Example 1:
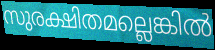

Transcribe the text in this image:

സുരക്ഷിതമല്ലെങ്കിൽ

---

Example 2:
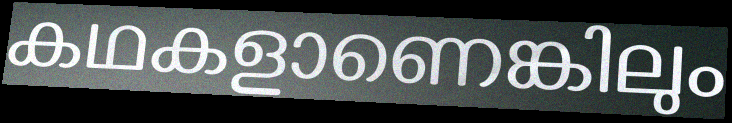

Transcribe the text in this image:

കഥകളാണെങ്കിലും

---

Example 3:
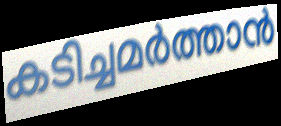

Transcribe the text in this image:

കടിച്ചമർത്താൻ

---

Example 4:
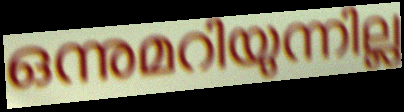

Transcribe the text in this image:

ഒന്നുമറിയുന്നില്ല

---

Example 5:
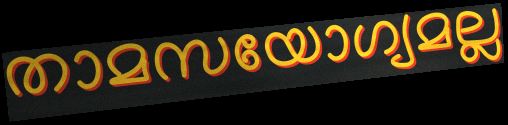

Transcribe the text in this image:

താമസയോഗ്യമല്ല